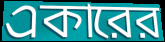
একারের